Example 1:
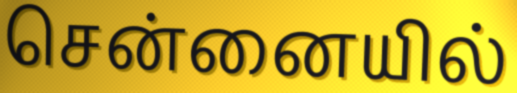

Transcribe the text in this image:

சென்னையில்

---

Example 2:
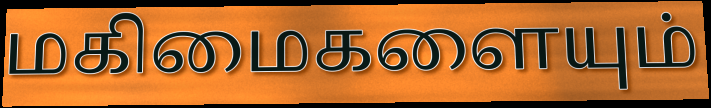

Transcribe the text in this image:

மகிமைகளையும்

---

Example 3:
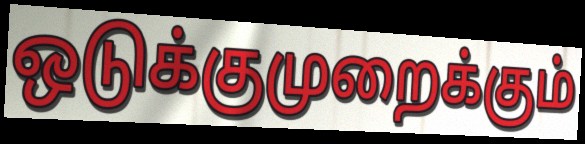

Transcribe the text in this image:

ஒடுக்குமுறைக்கும்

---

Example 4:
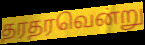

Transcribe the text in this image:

தரதரவென்று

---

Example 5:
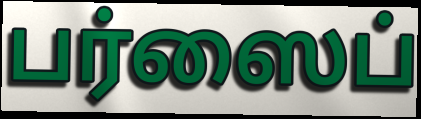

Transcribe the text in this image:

பர்ஸைப்